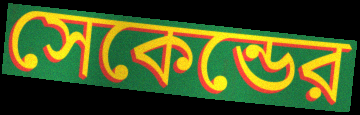
সেকেন্ডের